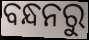
ବନ୍ଧନରୁ